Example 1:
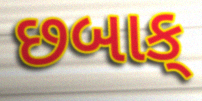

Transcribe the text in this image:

છબાક્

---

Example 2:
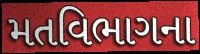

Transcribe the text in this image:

મતવિભાગના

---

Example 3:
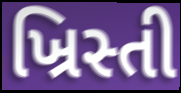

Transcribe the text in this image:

ખ્રિસ્તી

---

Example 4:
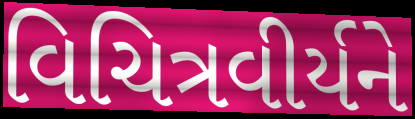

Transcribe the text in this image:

વિચિત્રવીર્યને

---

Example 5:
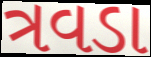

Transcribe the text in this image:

ત્રવડા